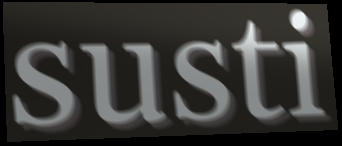
susti